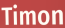
Timon